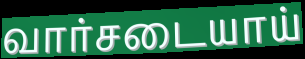
வார்சடையாய்